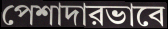
পেশাদারভাবে